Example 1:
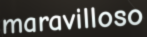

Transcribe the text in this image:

maravilloso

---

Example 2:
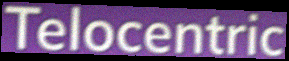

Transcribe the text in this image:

Telocentric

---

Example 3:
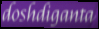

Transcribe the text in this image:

doshdiganta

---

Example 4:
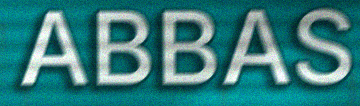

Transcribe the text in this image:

ABBAS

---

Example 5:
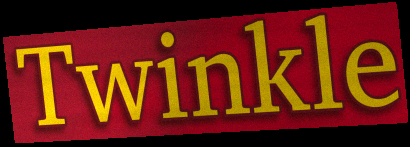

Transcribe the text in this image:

Twinkle